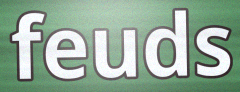
feuds